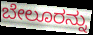
ಬೇಲೂರನ್ನು